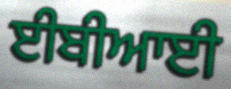
ਈਬੀਆਈ